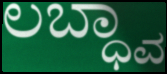
ಲಬ್ಧ್ವಾ